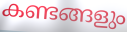
കണ്ടങ്ങളും